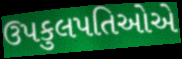
ઉપકુલપતિઓએ